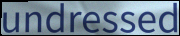
undressed